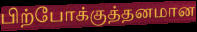
பிற்போக்குத்தனமான